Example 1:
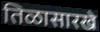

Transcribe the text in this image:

तिळासारखे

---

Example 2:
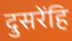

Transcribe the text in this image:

दुसरेंहि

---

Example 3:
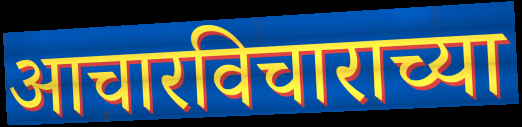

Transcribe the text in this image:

आचारविचाराच्या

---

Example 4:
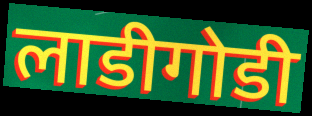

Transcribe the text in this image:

लाडीगोडी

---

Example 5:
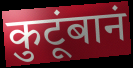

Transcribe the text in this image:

कुटूंबानं